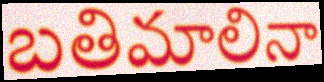
బతిమాలినా